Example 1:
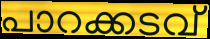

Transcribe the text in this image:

പാറക്കടവ്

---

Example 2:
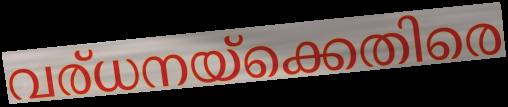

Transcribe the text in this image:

വര്ധനയ്ക്കെതിരെ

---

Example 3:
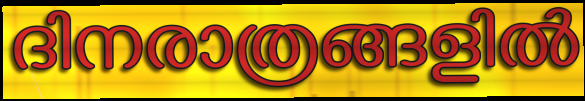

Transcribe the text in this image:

ദിനരാത്രങ്ങളിൽ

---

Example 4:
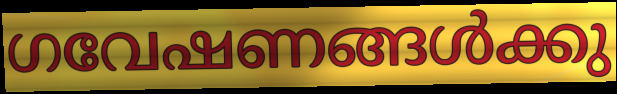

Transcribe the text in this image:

ഗവേഷണങ്ങൾക്കു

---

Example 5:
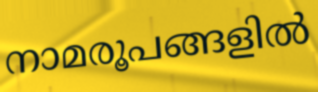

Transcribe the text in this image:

നാമരൂപങ്ങളിൽ